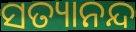
ସତ୍ୟାନନ୍ଦ